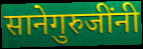
सानेगुरुजींनी